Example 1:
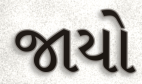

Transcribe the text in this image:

જાયો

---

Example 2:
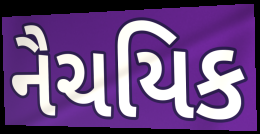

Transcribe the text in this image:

નૈચયિક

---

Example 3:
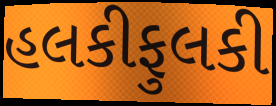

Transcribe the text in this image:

હલકીફુલકી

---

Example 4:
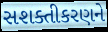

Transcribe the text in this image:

સશક્તીકરણને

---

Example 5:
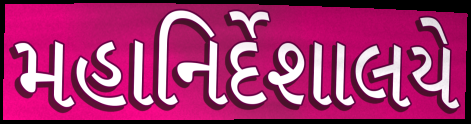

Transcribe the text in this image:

મહાનિર્દેશાલયે